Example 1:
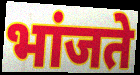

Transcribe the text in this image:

भांजते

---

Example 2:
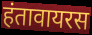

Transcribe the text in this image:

हंतावायरस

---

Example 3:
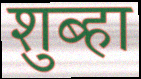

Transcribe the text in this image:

शुब्हा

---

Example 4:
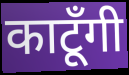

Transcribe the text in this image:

काटूँगी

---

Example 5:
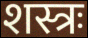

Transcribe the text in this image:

शस्त्रः